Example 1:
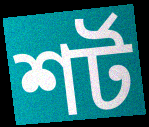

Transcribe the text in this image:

শর্ট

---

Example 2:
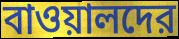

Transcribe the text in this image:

বাওয়ালদের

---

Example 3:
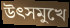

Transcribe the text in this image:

উৎসমুখে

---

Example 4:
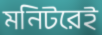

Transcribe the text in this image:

মনিটরেই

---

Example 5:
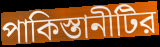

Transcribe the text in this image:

পাকিস্তানীটির